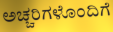
ಅಚ್ಚರಿಗಳೊಂದಿಗೆ